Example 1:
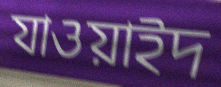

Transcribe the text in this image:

যাওয়াইদ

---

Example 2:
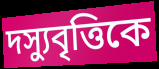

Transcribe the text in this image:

দস্যুবৃত্তিকে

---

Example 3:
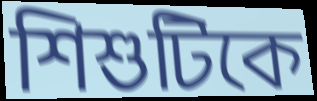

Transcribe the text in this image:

শিশুটিকে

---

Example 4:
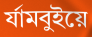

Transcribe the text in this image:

র্যামবুইয়ে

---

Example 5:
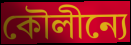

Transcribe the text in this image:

কৌলীন্যে